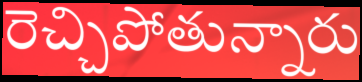
రెచ్చిపోతున్నారు